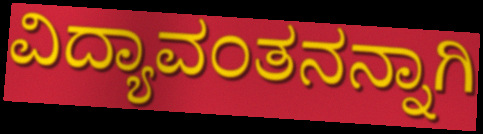
ವಿದ್ಯಾವಂತನನ್ನಾಗಿ